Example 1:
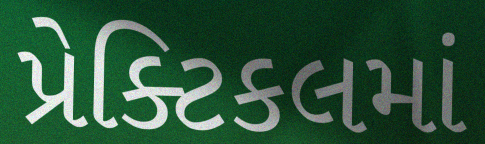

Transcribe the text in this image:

પ્રેક્ટિકલમાં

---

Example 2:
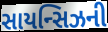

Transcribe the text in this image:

સાયન્સિઝની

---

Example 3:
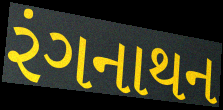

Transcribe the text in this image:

રંગનાથન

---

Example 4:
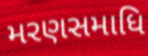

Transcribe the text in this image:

મરણસમાધિ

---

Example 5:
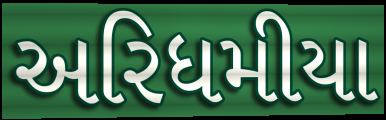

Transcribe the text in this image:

અરિધમીયા